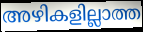
അഴികളില്ലാത്ത